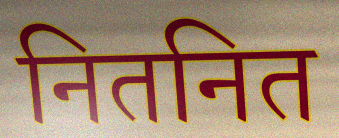
नितनित